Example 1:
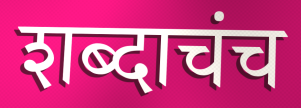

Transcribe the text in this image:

शब्दाचंच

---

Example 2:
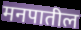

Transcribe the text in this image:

मनपातील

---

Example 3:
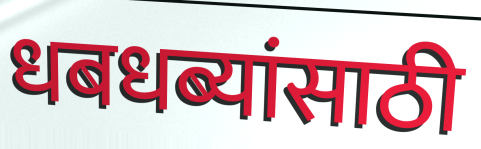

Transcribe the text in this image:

धबधब्यांसाठी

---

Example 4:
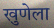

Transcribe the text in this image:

खुणेला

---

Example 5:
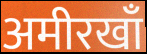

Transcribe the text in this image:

अमीरखाँ